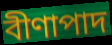
বীণাপাদ